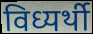
विध्यर्थी